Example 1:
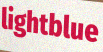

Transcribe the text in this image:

lightblue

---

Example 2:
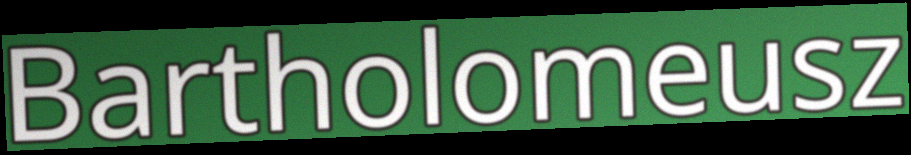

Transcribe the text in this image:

Bartholomeusz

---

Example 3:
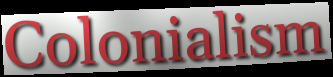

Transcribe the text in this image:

Colonialism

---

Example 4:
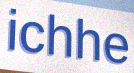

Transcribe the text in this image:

ichhe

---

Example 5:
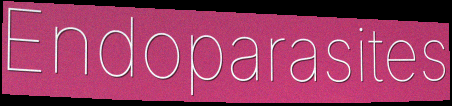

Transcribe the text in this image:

Endoparasites